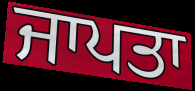
ਜਾਪਤਾ